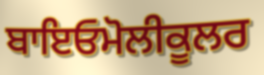
ਬਾਇਓਮੋਲੀਕੂਲਰ